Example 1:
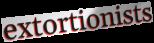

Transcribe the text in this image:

extortionists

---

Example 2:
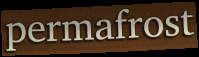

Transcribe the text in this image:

permafrost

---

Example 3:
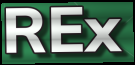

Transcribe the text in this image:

REx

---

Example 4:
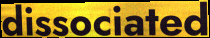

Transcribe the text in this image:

dissociated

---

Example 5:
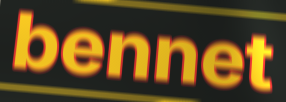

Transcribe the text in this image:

bennet